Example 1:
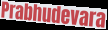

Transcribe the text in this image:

Prabhudevara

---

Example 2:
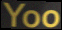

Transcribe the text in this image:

Yoo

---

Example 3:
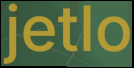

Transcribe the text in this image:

jetlo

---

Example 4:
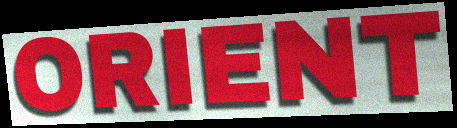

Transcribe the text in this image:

ORIENT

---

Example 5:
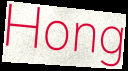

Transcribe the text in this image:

Hong